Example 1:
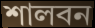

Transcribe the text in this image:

শালবন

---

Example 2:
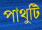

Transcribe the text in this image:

পাথুটি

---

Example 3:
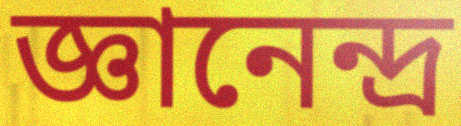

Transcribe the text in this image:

জ্ঞানেন্দ্র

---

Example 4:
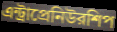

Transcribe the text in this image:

এন্ট্রাপ্রেনিউরশিপ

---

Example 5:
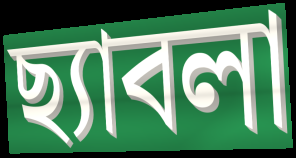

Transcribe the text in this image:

ছ্যাবলা